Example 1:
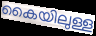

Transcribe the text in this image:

കൈയിലുള്ള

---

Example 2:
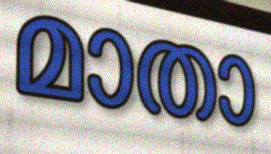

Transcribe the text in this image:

മാതാ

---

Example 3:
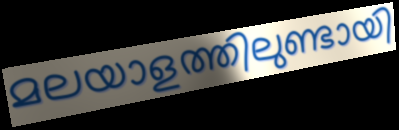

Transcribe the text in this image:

മലയാളത്തിലുണ്ടായി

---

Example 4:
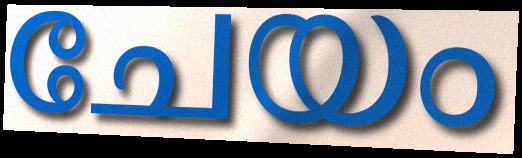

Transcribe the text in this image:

ചേയം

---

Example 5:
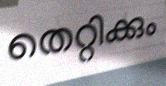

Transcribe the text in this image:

തെറ്റിക്കും